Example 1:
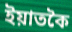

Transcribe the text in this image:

ইয়াতকৈ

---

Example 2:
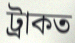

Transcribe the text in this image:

ট্ৰাকত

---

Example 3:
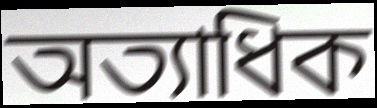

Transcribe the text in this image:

অত্যাধিক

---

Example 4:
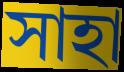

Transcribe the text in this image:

সাহা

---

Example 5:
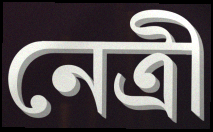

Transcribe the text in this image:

নেত্ৰী